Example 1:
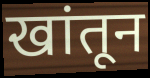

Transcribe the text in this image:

खांतून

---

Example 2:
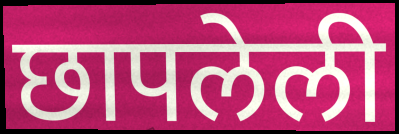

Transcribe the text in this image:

छापलेली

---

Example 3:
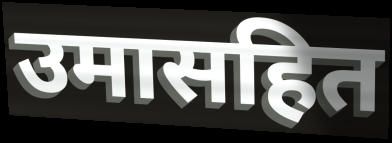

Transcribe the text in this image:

उमासहित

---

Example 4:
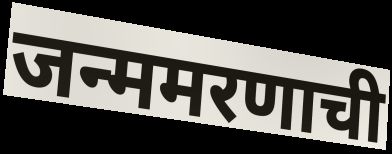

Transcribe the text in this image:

जन्ममरणाची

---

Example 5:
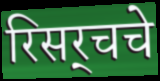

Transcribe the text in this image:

रिसर्चचे